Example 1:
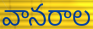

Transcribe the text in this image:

వానరాల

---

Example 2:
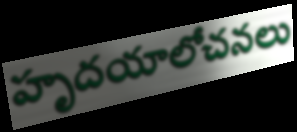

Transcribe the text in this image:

హృదయాలోచనలు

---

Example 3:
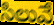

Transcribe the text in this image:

సిలువే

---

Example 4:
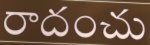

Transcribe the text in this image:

రాదంచు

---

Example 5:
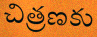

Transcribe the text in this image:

చిత్రణకు